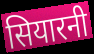
सियारनी